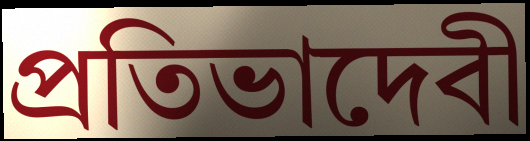
প্রতিভাদেবী